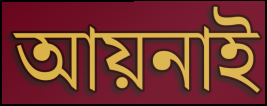
আয়নাই